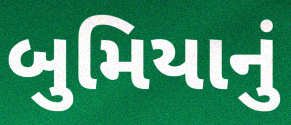
બુમિયાનું